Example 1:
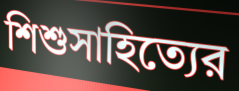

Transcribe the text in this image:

শিশুসাহিত্যের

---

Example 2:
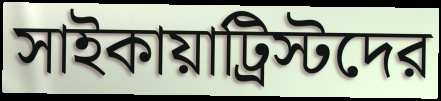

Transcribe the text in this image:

সাইকায়াট্রিস্টদের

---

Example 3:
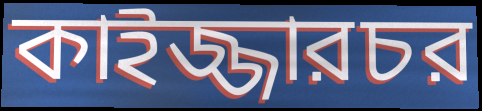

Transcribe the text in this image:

কাইজ্জারচর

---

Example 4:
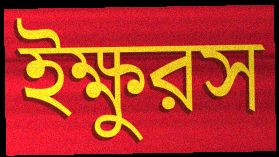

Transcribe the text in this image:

ইক্ষুরস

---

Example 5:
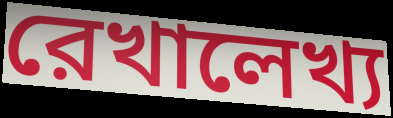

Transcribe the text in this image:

রেখালেখ্য